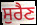
ਸੁਰੈਣ